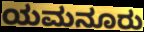
ಯಮನೂರು